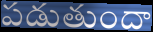
పడుతుందా